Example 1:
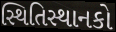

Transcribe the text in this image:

સ્થિતિસ્થાનકો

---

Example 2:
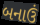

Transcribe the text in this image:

બનાઉં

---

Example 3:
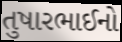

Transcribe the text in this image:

તુષારભાઈનો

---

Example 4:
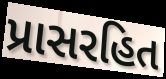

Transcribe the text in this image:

પ્રાસરહિત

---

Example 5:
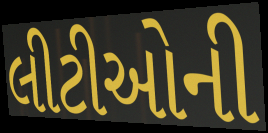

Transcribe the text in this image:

લીટીઓની